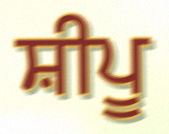
ਸ਼ੀਪੂ